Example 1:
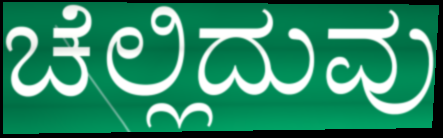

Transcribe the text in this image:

ಚೆಲ್ಲಿದುವು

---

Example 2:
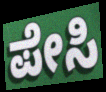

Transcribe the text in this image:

ಪೇಸಿ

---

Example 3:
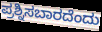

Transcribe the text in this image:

ಪ್ರಶ್ನಿಸಬಾರದೆಂದು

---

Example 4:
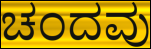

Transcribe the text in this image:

ಚಂದವು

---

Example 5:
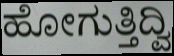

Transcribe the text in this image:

ಹೋಗುತ್ತಿದ್ವಿ